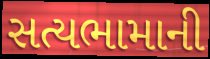
સત્યભામાની